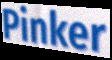
Pinker